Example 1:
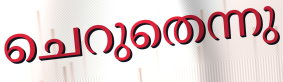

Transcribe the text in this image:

ചെറുതെന്നു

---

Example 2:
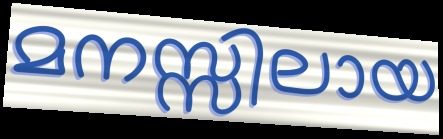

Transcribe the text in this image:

മനസ്സിലായ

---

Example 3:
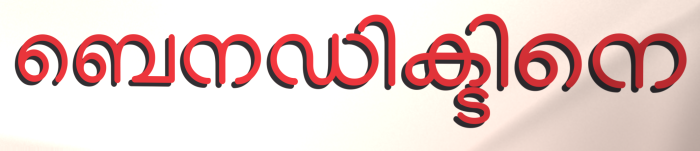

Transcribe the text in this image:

ബെനഡിക്ടിനെ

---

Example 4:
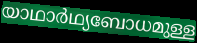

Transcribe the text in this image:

യാഥാർഥ്യബോധമുള്ള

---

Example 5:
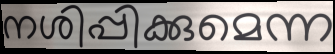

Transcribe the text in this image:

നശിപ്പിക്കുമെന്ന